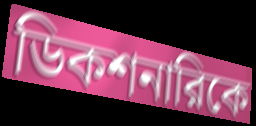
ডিকশনারিকে